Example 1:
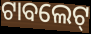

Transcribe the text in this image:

ଟାବଲେଟ୍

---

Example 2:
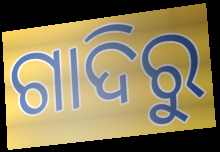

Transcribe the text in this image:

ଗାଦିରୁ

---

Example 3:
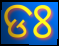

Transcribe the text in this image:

ଡଃ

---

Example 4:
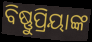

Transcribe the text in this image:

ବିଷ୍ଣୁପ୍ରିୟାଙ୍କ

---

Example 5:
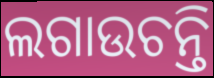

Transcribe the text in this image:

ଲଗାଉଚନ୍ତି